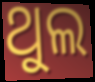
ଥୁଲ